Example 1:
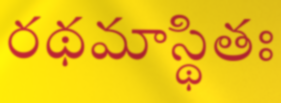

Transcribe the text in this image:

రథమాస్థితః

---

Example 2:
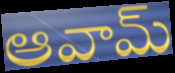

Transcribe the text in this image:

ఆవామ్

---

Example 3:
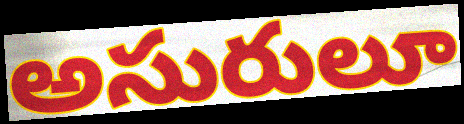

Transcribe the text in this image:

అసురులూ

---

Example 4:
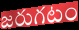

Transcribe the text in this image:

జరుగటం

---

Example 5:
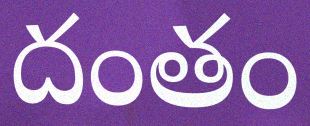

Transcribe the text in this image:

దంతం